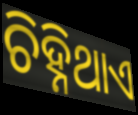
ଚିହ୍ନିଥାଏ